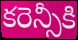
కరెన్సీకి